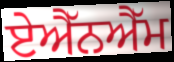
ਏਐੱਨਐੱਮ